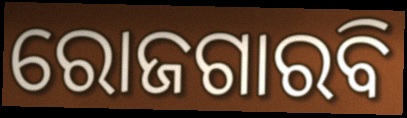
ରୋଜଗାରବି